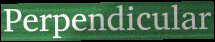
Perpendicular